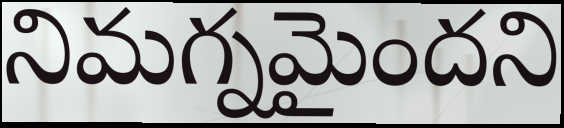
నిమగ్నమైందని